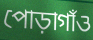
পোড়াগাঁও